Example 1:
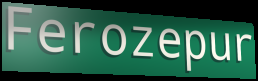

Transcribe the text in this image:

Ferozepur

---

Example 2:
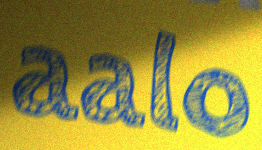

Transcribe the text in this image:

aalo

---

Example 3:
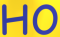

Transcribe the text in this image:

HO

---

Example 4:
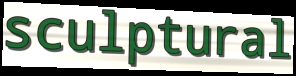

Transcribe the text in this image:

sculptural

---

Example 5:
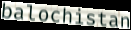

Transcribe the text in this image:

balochistan